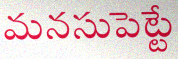
మనసుపెట్టే